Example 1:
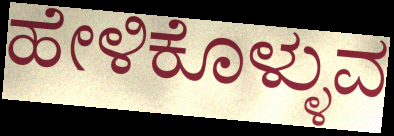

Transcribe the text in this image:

ಹೇಳಿಕೊಳ್ಳುವ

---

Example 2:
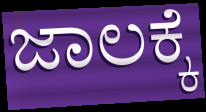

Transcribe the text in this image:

ಜಾಲಕ್ಕೆ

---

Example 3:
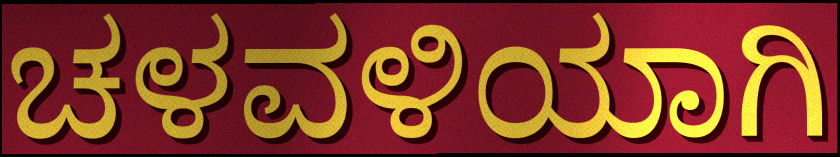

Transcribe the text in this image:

ಚಳವಳಿಯಾಗಿ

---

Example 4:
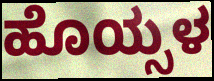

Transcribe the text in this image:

ಹೊಯ್ಸಳ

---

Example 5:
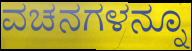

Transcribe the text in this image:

ವಚನಗಳನ್ನೂ